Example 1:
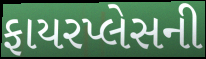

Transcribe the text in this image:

ફાયરપ્લેસની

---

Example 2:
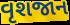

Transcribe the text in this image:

વૃશજાન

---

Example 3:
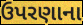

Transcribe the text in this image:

ઉપરણાના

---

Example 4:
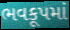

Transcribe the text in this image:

ભવકૂપમાં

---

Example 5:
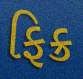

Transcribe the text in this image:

ફિક્ર